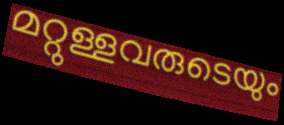
മറ്റുള്ളവരുടെയും